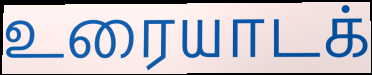
உரையாடக்